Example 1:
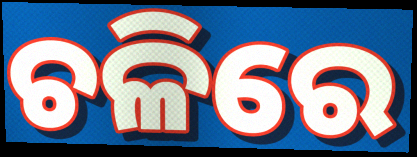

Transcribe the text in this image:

ଚଳିରେ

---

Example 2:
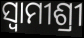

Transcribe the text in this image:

ସ୍ଵାମୀଶ୍ରୀ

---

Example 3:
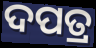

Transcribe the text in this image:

ଦପତ୍ର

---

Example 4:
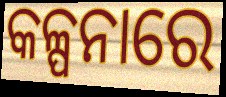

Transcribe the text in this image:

କଳ୍ପନାରେ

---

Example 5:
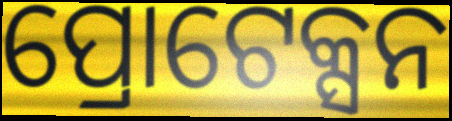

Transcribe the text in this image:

ପ୍ରୋଟେକ୍ସନ